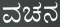
ವಚನ